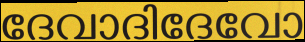
ദേവാദിദേവോ